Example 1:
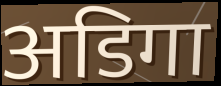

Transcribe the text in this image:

अडिगा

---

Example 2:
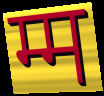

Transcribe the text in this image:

म्म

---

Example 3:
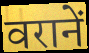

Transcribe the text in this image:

वरानें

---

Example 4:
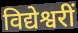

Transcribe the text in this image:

विद्येश्वरीं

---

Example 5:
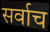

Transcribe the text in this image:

सर्वाच